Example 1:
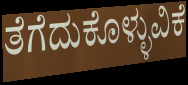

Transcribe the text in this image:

ತೆಗೆದುಕೊಳ್ಳುವಿಕೆ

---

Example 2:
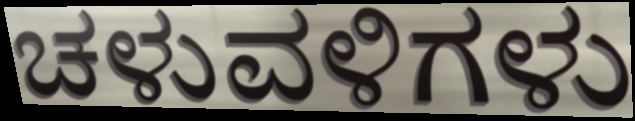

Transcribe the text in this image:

ಚಳುವಳಿಗಳು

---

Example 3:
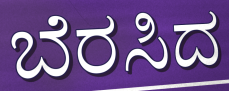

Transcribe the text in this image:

ಬೆರಸಿದ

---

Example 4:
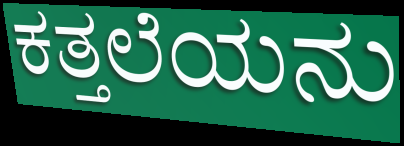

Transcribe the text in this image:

ಕತ್ತಲೆಯನು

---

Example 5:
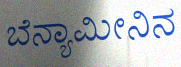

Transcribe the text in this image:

ಬೆನ್ಯಾಮೀನಿನ